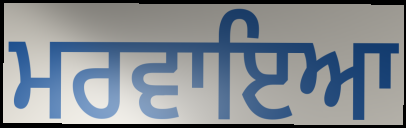
ਮਰਵਾਇਆ